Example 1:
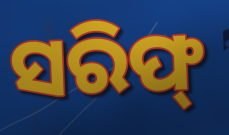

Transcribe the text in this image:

ସରିଫ୍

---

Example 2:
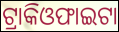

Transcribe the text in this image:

ଟ୍ରାକିଓଫାଇଟା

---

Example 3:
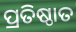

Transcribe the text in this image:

ପ୍ରତିଷ୍ଠାତ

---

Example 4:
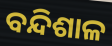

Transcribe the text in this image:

ବନ୍ଦିଶାଳ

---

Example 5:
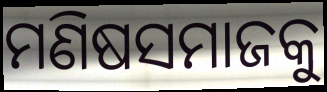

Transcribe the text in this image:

ମଣିଷସମାଜକୁ